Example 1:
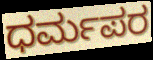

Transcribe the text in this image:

ಧರ್ಮಪರ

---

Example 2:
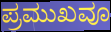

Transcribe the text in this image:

ಪ್ರಮುಖವೂ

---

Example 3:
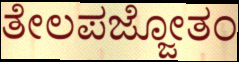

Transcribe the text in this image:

ತೇಲಪಜ್ಜೋತಂ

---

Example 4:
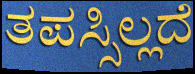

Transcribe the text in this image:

ತಪಸ್ಸಿಲ್ಲದೆ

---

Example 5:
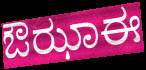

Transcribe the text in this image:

ಔಝಾಈ